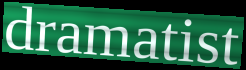
dramatist